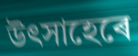
উৎসাহেৰে